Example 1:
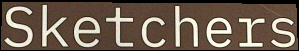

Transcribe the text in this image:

Sketchers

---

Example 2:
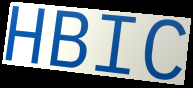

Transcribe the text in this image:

HBIC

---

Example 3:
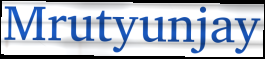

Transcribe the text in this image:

Mrutyunjay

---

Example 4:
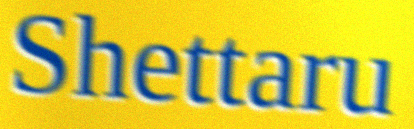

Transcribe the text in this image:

Shettaru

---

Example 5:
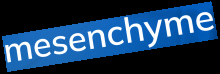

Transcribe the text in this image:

mesenchyme